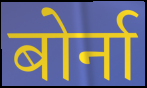
बोर्ना